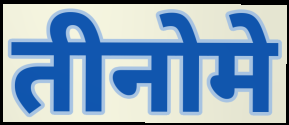
तीनोमे